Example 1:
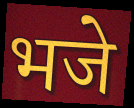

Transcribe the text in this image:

भजे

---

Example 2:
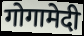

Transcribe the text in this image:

गोगामेदी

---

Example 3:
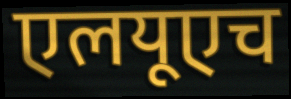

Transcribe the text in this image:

एलयूएच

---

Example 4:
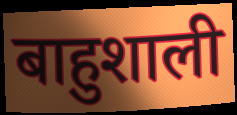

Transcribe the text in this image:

बाहुशाली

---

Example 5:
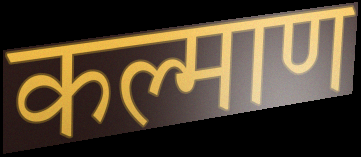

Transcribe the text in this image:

कल्माण